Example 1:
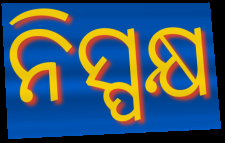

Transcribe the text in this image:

ନିସ୍ପକ୍ଷ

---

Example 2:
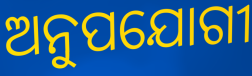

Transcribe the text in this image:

ଅନୁପଯୋଗୀ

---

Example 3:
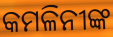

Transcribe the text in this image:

କମଳିନୀଙ୍କ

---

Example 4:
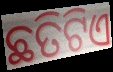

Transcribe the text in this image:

ଛତିଟିଏ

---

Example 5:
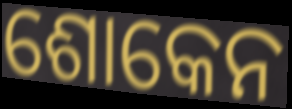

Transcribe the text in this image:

ଶୋକେନ